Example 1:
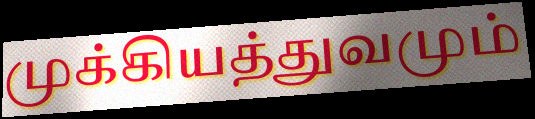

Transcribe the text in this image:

முக்கியத்துவமும்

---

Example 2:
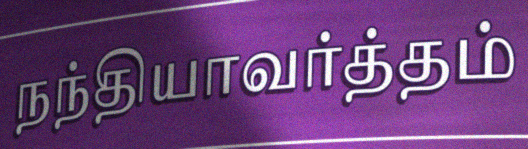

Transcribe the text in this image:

நந்தியாவர்த்தம்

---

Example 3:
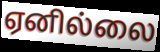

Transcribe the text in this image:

ஏனில்லை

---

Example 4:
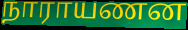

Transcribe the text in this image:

நாராயணன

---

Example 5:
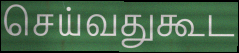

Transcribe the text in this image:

செய்வதுகூட